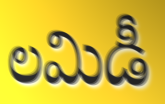
లమిడీ